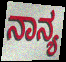
ನಾನ್ಯ